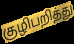
குழிபறித்து